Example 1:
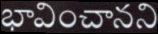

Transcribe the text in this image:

భావించానని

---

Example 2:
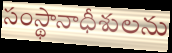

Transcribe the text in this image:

సంస్థానాధీశులను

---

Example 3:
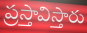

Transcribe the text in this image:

ప్రస్తావిస్తారు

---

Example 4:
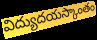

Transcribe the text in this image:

విద్యుదయస్కాంతం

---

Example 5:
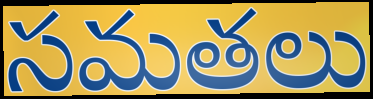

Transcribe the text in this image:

సమతలు